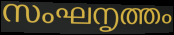
സംഘനൃത്തം